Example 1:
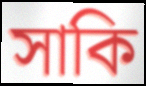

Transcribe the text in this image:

সাকি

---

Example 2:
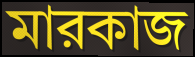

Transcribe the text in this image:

মারকাজ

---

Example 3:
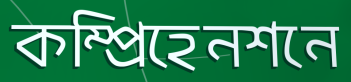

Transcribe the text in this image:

কম্প্রিহেনশনে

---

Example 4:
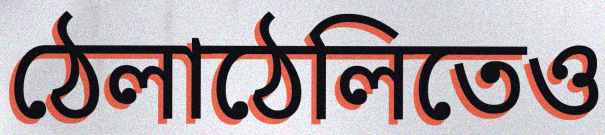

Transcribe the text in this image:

ঠেলাঠেলিতেও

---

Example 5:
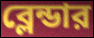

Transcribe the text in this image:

ব্লেন্ডার